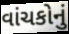
વાંચકોનું